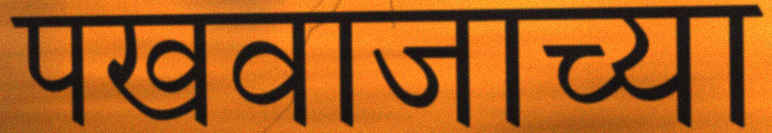
पखवाजाच्या